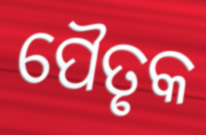
ପୈତୃକ